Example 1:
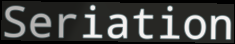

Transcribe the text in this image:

Seriation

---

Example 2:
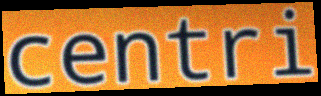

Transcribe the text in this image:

centri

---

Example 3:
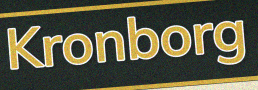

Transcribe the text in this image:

Kronborg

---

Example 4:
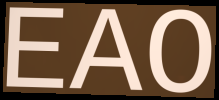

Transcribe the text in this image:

EAO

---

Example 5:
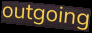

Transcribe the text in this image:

outgoing